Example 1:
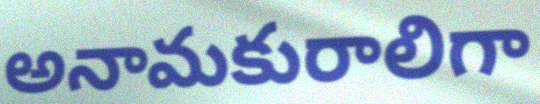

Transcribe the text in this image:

అనామకురాలిగా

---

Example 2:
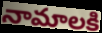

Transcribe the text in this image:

నామాలకి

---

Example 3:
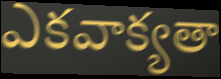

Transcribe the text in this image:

ఎకవాక్యతా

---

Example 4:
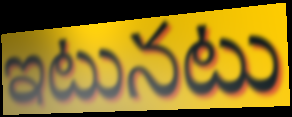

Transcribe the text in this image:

ఇటునటు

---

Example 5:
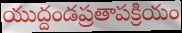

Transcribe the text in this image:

యుద్దండప్రతాపక్రియం